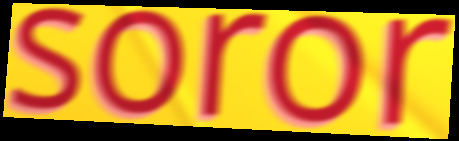
soror